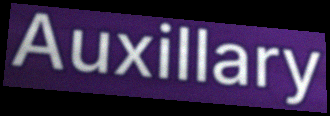
Auxillary